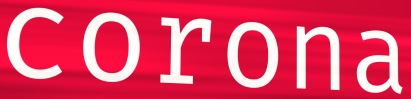
corona